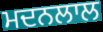
ਮਦਨਲਾਲ